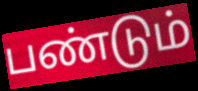
பண்டும்